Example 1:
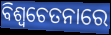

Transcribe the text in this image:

ବିଶ୍ୱଚେତନାରେ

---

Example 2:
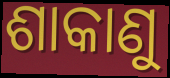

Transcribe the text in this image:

ଶାକାଣୁ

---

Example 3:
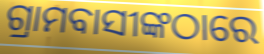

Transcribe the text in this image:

ଗ୍ରାମବାସୀଙ୍କଠାରେ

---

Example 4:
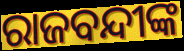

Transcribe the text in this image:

ରାଜବନ୍ଦୀଙ୍କ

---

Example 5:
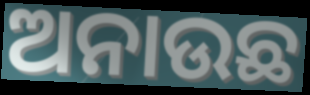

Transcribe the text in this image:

ଅନାଉଛ